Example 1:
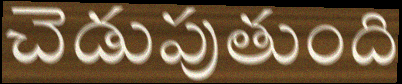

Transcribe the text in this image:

చెడుపుతుంది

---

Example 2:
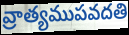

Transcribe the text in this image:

వ్రాత్యముపవదతి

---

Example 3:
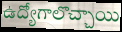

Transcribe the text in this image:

ఉద్యోగాలొచ్చాయి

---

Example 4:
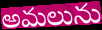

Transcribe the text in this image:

అమలును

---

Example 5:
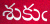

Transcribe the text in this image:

శుకుఁ